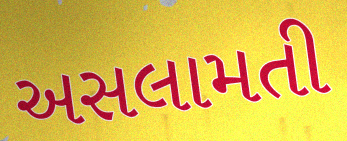
અસલામતી